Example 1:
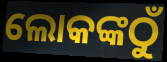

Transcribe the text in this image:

ଲୋକଙ୍କଠୁଁ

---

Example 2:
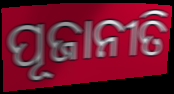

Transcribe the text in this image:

ପୂଜାନୀତି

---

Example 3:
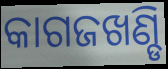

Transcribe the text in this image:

କାଗଜଖଣ୍ଡି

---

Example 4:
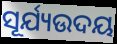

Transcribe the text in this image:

ସୂର୍ଯ୍ୟଉଦୟ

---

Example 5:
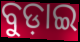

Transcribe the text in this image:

ବୁଡ଼ାଇ